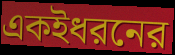
একইধরনের